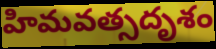
హిమవత్సదృశం